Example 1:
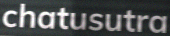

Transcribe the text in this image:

chatusutra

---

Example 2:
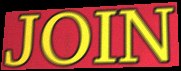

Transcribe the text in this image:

JOIN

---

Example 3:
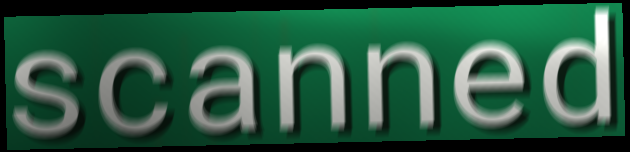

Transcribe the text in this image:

scanned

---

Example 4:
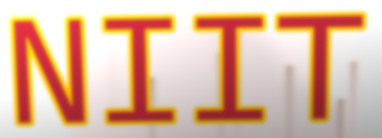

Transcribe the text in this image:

NIIT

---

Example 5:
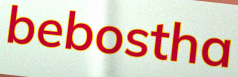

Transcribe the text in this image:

bebostha